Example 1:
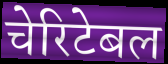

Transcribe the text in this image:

चेरिटेबल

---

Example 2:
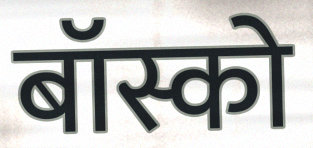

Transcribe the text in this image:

बॉस्को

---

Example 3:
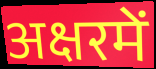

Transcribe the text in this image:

अक्षरमें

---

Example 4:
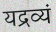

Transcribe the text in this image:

यद्रव्यं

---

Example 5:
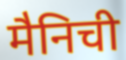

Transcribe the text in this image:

मैनिची